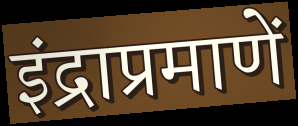
इंद्राप्रमाणें